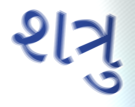
શત્રુ